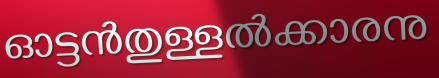
ഓട്ടൻതുള്ളൽക്കാരനു